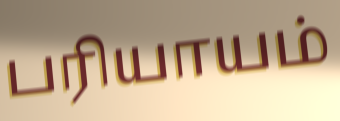
பரியாயம்